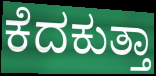
ಕೆದಕುತ್ತಾ